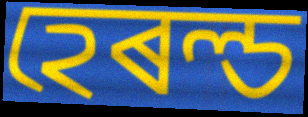
হেৰল্ড